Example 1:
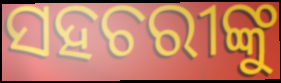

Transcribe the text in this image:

ସହଚରୀଙ୍କୁ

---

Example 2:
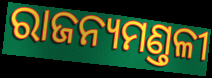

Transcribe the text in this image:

ରାଜନ୍ୟମଣ୍ତଳୀ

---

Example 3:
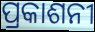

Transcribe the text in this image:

ପ୍ରକାଶନୀ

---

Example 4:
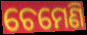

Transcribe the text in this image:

ଚେମେଣି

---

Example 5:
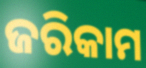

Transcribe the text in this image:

ଜରିକାମ